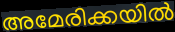
അമേരിക്കയിൽ